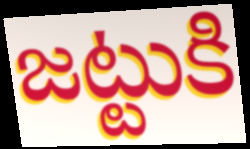
జట్టుకి